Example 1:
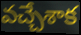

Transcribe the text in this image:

వచ్చేశాక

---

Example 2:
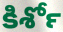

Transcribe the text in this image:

కిశోర్‍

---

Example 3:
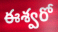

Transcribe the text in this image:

ఈశ్వరో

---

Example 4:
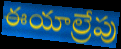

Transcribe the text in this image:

ఈయాల్రేపు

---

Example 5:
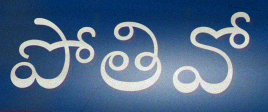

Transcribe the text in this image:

పోతివో